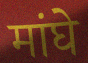
मांघे